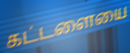
கட்டளையை